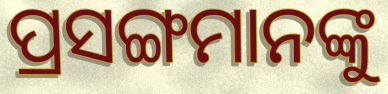
ପ୍ରସଙ୍ଗମାନଙ୍କୁ